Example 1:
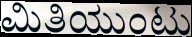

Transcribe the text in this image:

ಮಿತಿಯುಂಟು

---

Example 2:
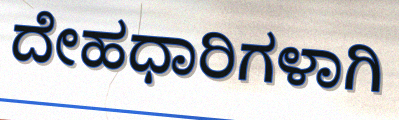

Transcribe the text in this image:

ದೇಹಧಾರಿಗಳಾಗಿ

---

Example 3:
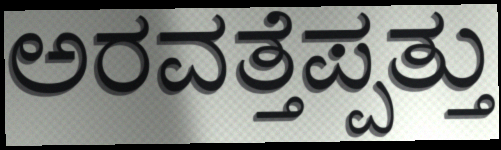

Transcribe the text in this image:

ಅರವತ್ತೆಪ್ಪತ್ತು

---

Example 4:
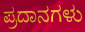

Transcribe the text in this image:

ಪ್ರದಾನಗಳು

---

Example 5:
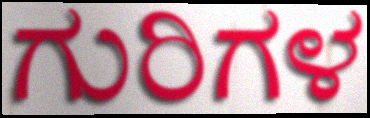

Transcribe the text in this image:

ಗುರಿಗಳ